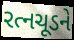
રત્નચૂડને